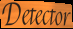
Detector